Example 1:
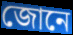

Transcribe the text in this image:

জোনে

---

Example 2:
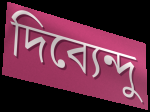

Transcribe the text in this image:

দিব্যেন্দু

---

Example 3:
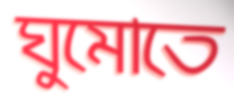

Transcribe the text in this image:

ঘুমোতে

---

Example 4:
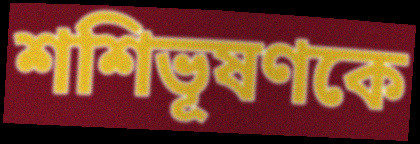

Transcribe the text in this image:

শশিভূষণকে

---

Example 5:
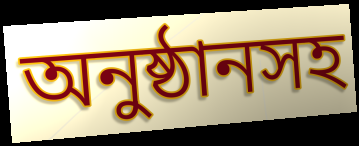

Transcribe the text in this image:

অনুষ্ঠানসহ